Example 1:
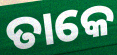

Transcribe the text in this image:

ତାକେ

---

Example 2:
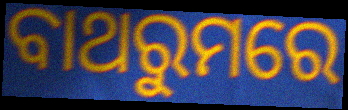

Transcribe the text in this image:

ବାଥରୁମରେ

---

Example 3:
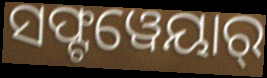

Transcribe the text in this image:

ସଫ୍ଟୱେୟାର୍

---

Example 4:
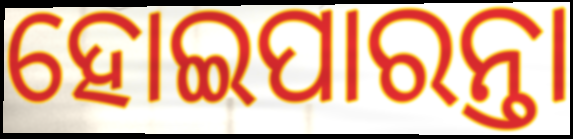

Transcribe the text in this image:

ହୋଇପାରନ୍ତା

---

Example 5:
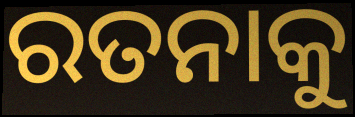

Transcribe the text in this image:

ରତନାକୁ